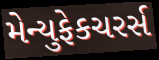
મેન્યુફેકચરર્સ